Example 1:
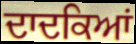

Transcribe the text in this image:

ਦਾਦਕਿਆਂ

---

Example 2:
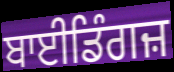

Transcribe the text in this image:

ਬਾਈਡਿੰਗਜ਼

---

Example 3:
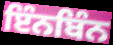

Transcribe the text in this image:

ਇੰਨਬਿੰਨ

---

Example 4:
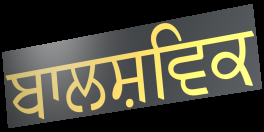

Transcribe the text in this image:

ਬਾਲਸ਼ਵਿਕ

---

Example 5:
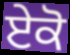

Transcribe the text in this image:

ਏਕੋ